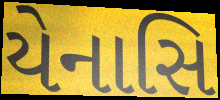
યેનાસિ